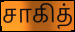
சாகித்